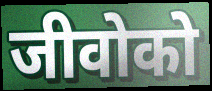
जीवोको